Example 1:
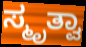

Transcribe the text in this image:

ಸ್ಮೃತ್ವಾ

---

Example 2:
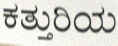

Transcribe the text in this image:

ಕತ್ತುರಿಯ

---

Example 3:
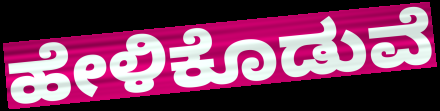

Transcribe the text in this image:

ಹೇಳಿಕೊಡುವೆ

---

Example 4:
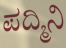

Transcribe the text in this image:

ಪದ್ಮಿನಿ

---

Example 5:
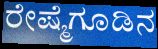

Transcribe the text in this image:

ರೇಷ್ಮೆಗೂಡಿನ